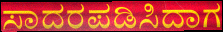
ಸಾದರಪಡಿಸಿದಾಗ